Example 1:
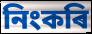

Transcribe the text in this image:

নিংকৰি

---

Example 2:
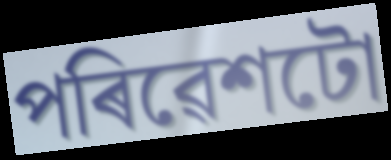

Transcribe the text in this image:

পৰিৱেশটো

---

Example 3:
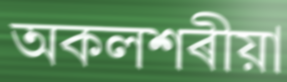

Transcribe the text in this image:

অকলশৰীয়া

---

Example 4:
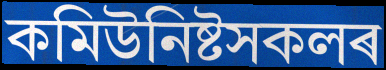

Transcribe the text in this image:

কমিউনিষ্টসকলৰ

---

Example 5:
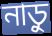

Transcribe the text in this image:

নাডু